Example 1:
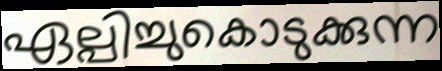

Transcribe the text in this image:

ഏല്പിച്ചുകൊടുക്കുന്ന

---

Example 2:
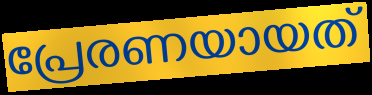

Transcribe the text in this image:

പ്രേരണയായത്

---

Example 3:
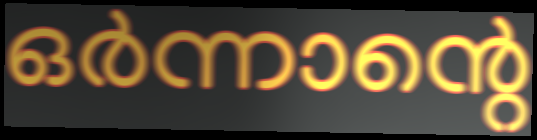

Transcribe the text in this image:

ഒർന്നാന്റെ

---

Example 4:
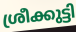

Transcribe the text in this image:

ശ്രീക്കുട്ടി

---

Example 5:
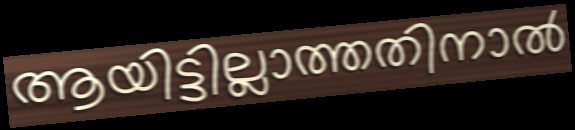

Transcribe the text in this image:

ആയിട്ടില്ലാത്തതിനാൽ